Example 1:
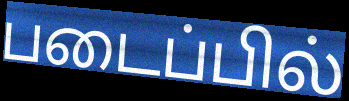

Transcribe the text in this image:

படைப்பில்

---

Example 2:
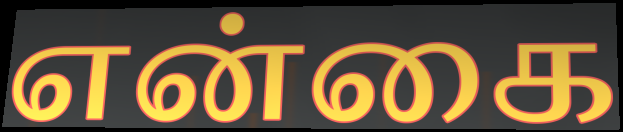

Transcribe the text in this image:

என்கை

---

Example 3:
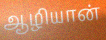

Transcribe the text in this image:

ஆழியான்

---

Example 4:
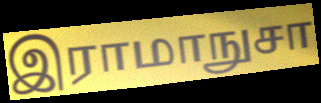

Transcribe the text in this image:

இராமாநுசா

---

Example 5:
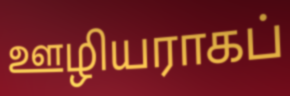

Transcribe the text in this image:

ஊழியராகப்